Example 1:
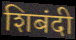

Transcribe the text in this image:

शिबंदी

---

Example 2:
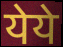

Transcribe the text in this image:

येये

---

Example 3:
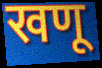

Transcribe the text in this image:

खणू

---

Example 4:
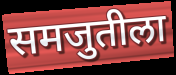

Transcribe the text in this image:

समजुतीला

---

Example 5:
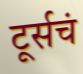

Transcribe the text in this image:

टूर्सचं